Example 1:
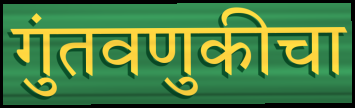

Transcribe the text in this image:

गुंतवणुकीचा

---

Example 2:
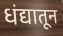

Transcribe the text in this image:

धंद्यातून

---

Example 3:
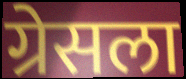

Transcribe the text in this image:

ग्रेसला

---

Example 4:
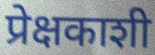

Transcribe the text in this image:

प्रेक्षकाशी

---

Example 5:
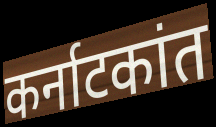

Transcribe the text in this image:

कर्नाटकांत